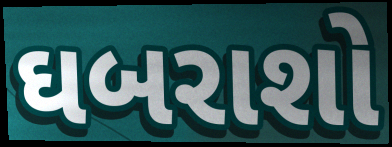
ઘબરાશો